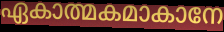
ഏകാത്മകമാകാനേ